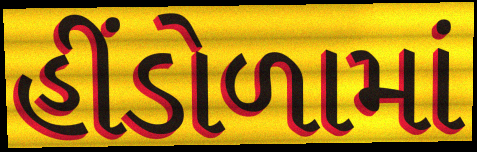
હીંડોળામાં